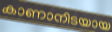
കാണാനിടയായ